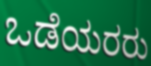
ಒಡೆಯರರು